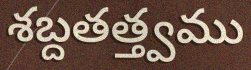
శబ్దతత్త్వము